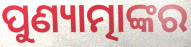
ପୁଣ୍ୟାତ୍ମାଙ୍କର